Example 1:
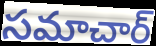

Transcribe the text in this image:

సమాచార్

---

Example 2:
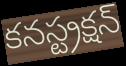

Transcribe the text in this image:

కనస్ట్రక్షన్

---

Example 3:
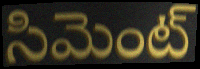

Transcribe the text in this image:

సిమెంట్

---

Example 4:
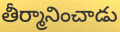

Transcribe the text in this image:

తీర్మానించాడు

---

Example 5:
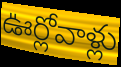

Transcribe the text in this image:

ఊర్లోవాళ్లు